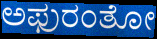
ಅಫುರಂತೋ